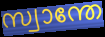
സ്വാന്തേ